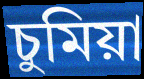
চুমিয়া